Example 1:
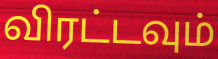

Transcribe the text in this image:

விரட்டவும்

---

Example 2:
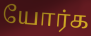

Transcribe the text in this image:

யோர்க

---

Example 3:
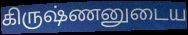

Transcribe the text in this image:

கிருஷ்ணனுடைய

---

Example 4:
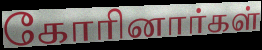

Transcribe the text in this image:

கோரினார்கள்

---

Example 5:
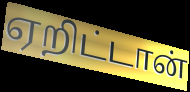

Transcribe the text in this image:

ஏறிட்டான்